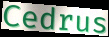
Cedrus